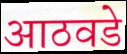
आठवडे